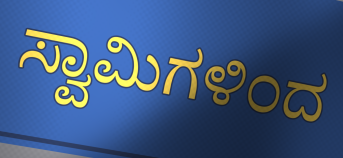
ಸ್ವಾಮಿಗಳಿಂದ